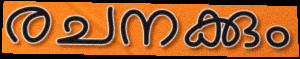
രചനക്കും